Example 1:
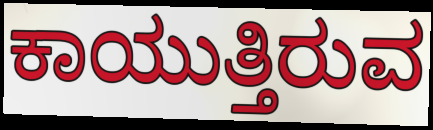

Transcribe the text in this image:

ಕಾಯುತ್ತಿರುವ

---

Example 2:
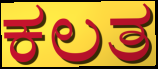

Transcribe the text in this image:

ಕಲತ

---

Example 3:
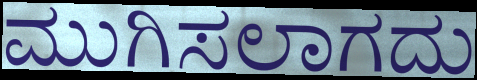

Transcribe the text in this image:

ಮುಗಿಸಲಾಗದು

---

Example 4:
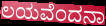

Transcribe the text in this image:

ಲಯವೆಂದನಾ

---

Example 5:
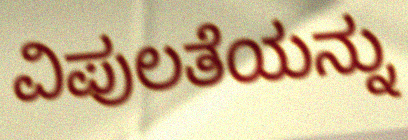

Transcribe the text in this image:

ವಿಪುಲತೆಯನ್ನು